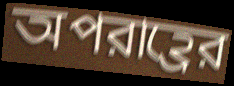
অপরাহ্রের